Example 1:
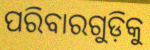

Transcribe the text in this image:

ପରିବାରଗୁଡ଼ିକୁ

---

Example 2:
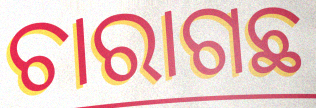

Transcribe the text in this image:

ଚାରାଗଛ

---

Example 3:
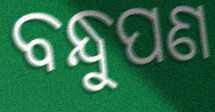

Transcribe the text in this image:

ବନ୍ଧୁପଣ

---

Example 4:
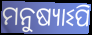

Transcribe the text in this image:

ମନୁଷ୍ୟାଽପି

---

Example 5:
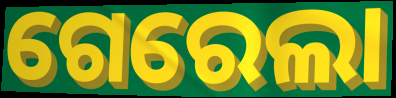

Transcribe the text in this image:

ଗେରେଲା